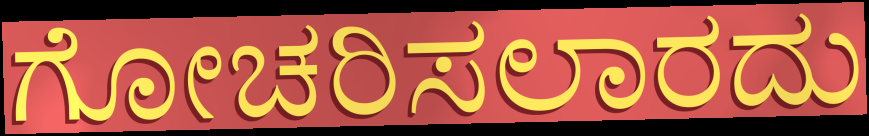
ಗೋಚರಿಸಲಾರದು